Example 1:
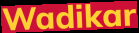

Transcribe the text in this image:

Wadikar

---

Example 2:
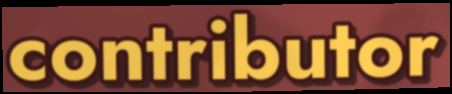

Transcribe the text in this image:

contributor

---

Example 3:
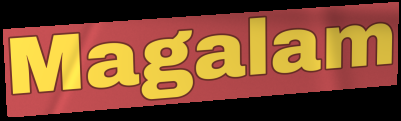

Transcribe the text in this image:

Magalam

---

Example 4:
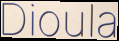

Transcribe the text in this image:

Dioula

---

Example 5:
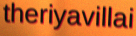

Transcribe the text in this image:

theriyavillai